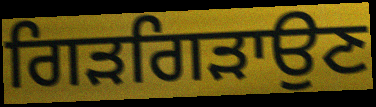
ਗਿੜਗਿੜਾਉਣ